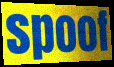
spoof